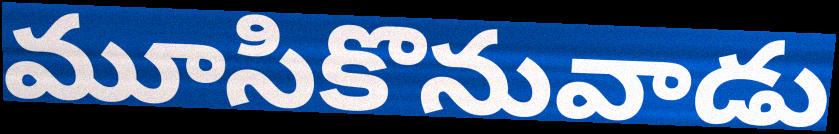
మూసికొనువాడు